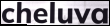
cheluva